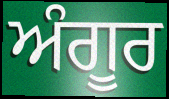
ਅੰਗੂਰ